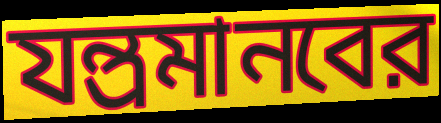
যন্ত্রমানবের